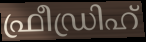
ഫ്രീഡ്രിഹ്